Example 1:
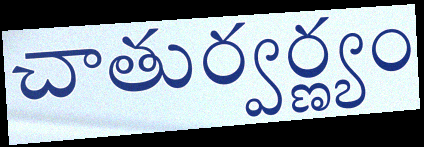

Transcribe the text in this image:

చాతుర్వర్ణ్యం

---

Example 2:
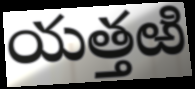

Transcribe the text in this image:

యత్తఱి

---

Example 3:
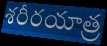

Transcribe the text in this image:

శరీరయాత్ర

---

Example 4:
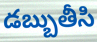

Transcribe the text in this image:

డబ్బుతీసి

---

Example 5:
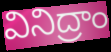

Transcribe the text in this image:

వినిద్రాం